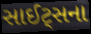
સાઈટ્સના